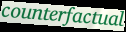
counterfactual